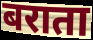
बराता